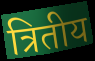
त्रितीय